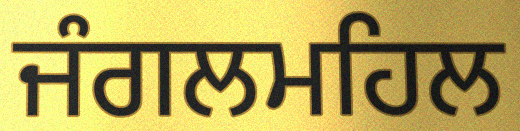
ਜੰਗਲਮਹਿਲ